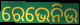
ରେଭେନିଉ